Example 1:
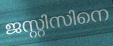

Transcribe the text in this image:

ജസ്റ്റിസിനെ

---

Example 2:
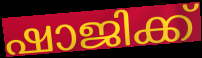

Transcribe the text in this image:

ഷാജിക്ക്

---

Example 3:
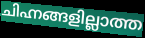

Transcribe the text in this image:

ചിഹ്നങ്ങളില്ലാത്ത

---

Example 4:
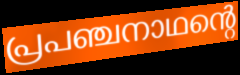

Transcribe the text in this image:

പ്രപഞ്ചനാഥന്റെ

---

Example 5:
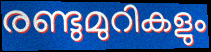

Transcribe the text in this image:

രണ്ടുമുറികളും